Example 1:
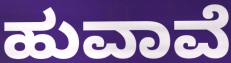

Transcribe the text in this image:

ಹುವಾವೆ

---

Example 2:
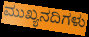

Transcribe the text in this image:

ಮುಖ್ಯನದಿಗಳು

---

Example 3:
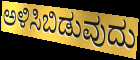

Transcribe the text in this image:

ಅಳಿಸಿಬಿಡುವುದು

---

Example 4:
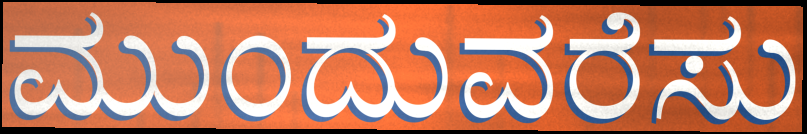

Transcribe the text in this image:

ಮುಂದುವರೆಸು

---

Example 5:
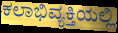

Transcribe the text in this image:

ಕಲಾಭಿವ್ಯಕ್ತಿಯಲ್ಲಿ